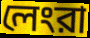
লেংরা